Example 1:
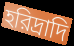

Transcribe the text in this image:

হরিদ্রাদি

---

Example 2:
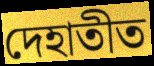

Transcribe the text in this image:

দেহাতীত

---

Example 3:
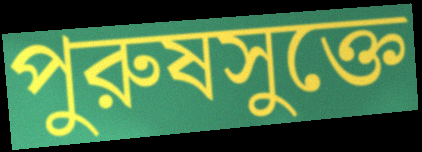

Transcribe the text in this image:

পুরুষসুক্তে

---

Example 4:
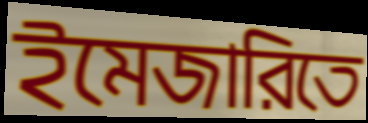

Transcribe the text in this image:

ইমেজারিতে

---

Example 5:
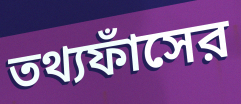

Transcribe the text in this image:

তথ্যফাঁসের